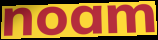
noam